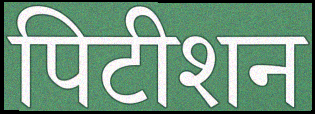
पिटीशन